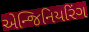
એન્જિનિયરિંગ